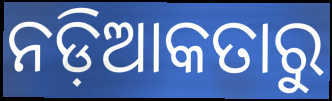
ନଡ଼ିଆକତାରୁ